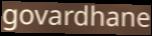
govardhane